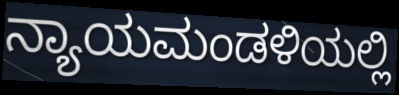
ನ್ಯಾಯಮಂಡಳಿಯಲ್ಲಿ